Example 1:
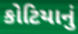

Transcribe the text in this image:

કોટિયાનું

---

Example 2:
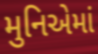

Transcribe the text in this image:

મુનિએમાં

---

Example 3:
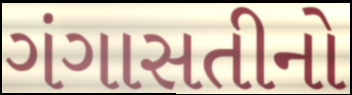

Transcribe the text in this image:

ગંગાસતીનો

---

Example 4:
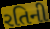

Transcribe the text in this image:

રતિની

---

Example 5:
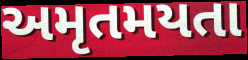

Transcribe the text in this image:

અમૃતમયતા